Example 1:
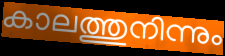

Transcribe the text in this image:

കാലത്തുനിന്നും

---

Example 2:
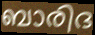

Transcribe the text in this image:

ബാരിദ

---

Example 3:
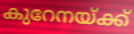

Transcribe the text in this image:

കുറേനയ്ക്ക്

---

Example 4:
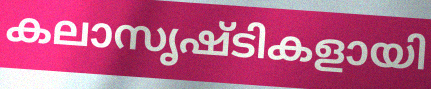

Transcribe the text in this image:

കലാസൃഷ്ടികളായി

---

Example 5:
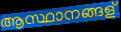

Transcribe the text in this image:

ആസ്ഥാനങ്ങള്